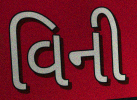
વિની